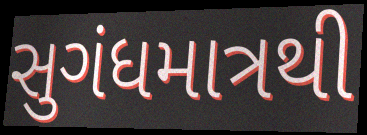
સુગંધમાત્રથી